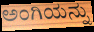
ಅಂಗಿಯನ್ನು